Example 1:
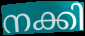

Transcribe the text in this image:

നക്കി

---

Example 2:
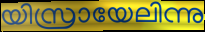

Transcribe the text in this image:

യിസ്രായേലിന്നു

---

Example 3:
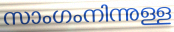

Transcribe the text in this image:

സാംഗംനിന്നുള്ള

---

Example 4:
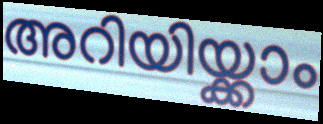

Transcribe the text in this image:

അറിയിയ്ക്കാം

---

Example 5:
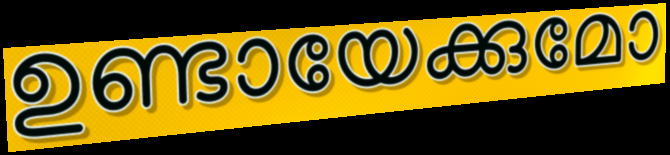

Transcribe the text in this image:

ഉണ്ടായേക്കുമോ